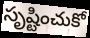
సృష్టించుకో